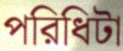
পরিধিটা